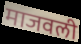
माजवली